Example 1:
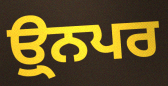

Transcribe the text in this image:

ਉ੍ਨਪਰ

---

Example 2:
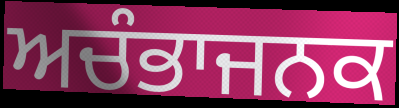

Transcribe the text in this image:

ਅਚੰਭਾਜਨਕ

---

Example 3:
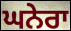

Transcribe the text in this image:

ਘਨੇਰਾ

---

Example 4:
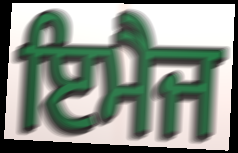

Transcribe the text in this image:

ਇਮੈਜ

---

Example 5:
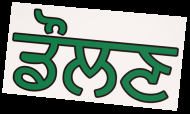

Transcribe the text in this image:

ਡੌਲਣ